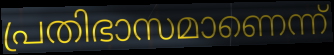
പ്രതിഭാസമാണെന്ന്